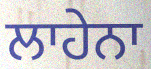
ਲਾਹੇਨਾ